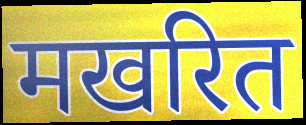
मखरित